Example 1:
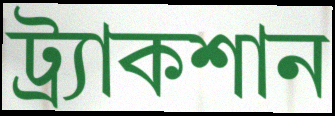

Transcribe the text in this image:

ট্র্যাকশান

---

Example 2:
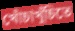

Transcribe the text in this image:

খোঁচাখুঁচিতে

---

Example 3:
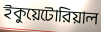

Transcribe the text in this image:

ইকুয়েটোরিয়াল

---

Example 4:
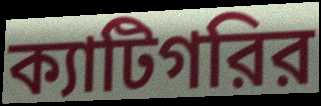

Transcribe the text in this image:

ক্যাটিগরির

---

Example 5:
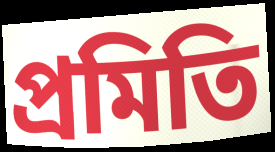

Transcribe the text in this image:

প্রমিতি